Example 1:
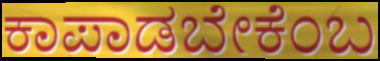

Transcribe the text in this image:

ಕಾಪಾಡಬೇಕೆಂಬ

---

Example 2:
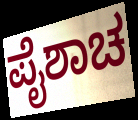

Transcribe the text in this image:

ಪೈಶಾಚ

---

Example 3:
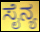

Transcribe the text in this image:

ಸೈನ್ಯ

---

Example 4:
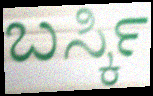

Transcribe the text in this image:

ಬರ್ಸ್ಕಿ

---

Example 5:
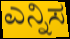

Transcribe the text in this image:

ಎನ್ನಿಸ